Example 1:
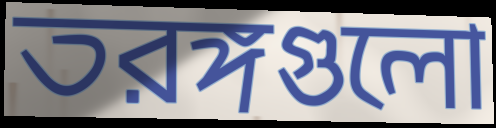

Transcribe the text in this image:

তরঙ্গগুলো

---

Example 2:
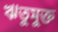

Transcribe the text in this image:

ঋতুমুক্ত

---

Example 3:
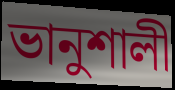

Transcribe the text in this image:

ভানুশালী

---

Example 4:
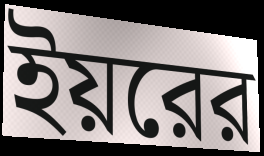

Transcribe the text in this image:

ইয়রের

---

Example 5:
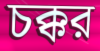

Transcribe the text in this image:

চক্কর